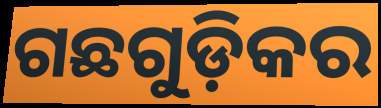
ଗଛଗୁଡ଼ିକର